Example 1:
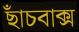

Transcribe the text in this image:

ছাঁচবাক্স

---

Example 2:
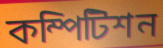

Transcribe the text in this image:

কম্পিটিশন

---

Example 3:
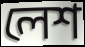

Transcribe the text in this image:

লেশ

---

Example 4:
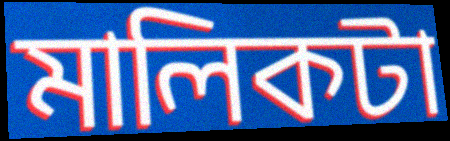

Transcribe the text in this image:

মালিকটা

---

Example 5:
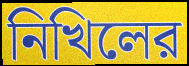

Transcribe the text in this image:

নিখিলের